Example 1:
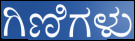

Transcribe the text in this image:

ಗಿಣಿಗಳು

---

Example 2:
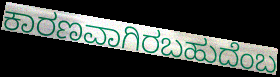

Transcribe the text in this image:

ಕಾರಣವಾಗಿರಬಹುದೆಂಬ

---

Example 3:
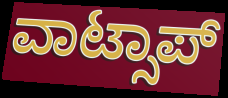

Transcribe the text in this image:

ವಾಟ್ಸಾಪ್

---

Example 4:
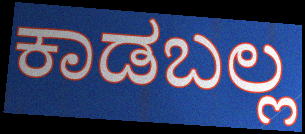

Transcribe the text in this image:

ಕಾಡಬಲ್ಲ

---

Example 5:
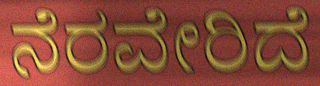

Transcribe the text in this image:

ನೆರವೇರಿದೆ